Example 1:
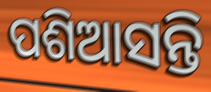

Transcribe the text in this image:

ପଶିଆସନ୍ତି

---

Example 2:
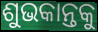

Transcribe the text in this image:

ଶୁଭକାନ୍ତକୁ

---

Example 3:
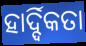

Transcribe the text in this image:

ହାର୍ଦ୍ଦିକତା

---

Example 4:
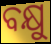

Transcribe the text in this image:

ବକ୍ଷୁ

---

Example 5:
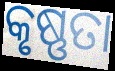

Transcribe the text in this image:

କୃଷ୍ଣତା